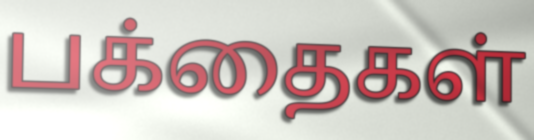
பக்தைகள்